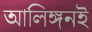
আলিঙ্গনই